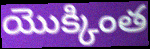
యొక్కింత